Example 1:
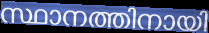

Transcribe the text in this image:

സ്ഥാനത്തിനായി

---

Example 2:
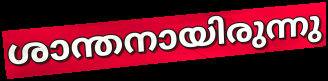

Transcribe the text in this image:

ശാന്തനായിരുന്നു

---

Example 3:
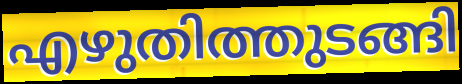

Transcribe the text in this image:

എഴുതിത്തുടങ്ങി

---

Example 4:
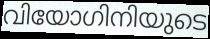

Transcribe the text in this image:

വിയോഗിനിയുടെ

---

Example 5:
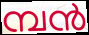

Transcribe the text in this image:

മ്പൻ